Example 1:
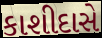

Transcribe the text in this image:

કાશીદાસે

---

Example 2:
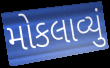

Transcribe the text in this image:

મોકલાવ્યું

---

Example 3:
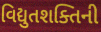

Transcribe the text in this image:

વિદ્યુતશક્તિની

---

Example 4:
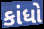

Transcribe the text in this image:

કાંધો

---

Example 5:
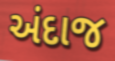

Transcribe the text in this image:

અંદાજ